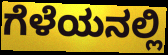
ಗೆಳೆಯನಲ್ಲಿ